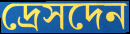
দ্রেসদেন